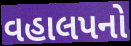
વહાલપનો